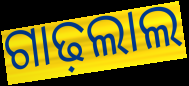
ଗାଢ଼ଲାଲ